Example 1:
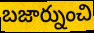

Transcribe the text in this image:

బజార్నుంచి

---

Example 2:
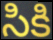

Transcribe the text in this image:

సికి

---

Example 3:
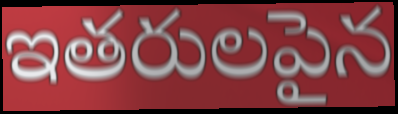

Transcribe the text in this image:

ఇతరులపైన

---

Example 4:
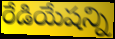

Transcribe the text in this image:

రేడియేషన్ని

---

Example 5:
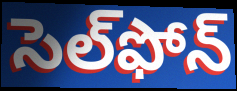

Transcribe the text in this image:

సెల్‌ఫోన్